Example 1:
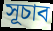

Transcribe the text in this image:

সূচাব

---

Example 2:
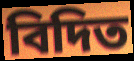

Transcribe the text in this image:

বিদিত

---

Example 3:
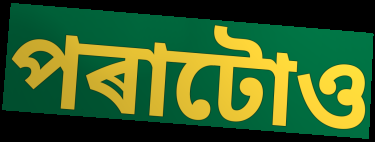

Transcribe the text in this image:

পৰাটোও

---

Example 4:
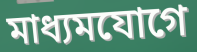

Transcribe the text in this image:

মাধ্যমযোগে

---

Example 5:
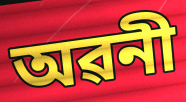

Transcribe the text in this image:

অৱনী